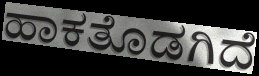
ಹಾಕತೊಡಗಿದೆ